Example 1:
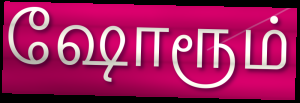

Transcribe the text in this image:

ஷோரூம்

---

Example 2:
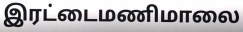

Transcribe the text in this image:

இரட்டைமணிமாலை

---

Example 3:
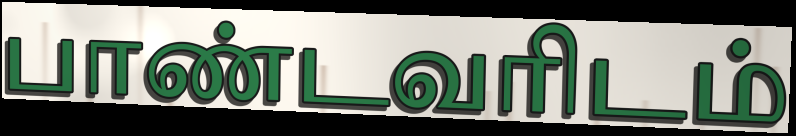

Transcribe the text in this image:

பாண்டவரிடம்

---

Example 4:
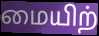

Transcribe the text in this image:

மையிற்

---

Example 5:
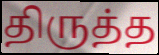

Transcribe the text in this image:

திருத்த